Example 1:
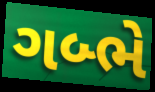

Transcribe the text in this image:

ગબ્ભે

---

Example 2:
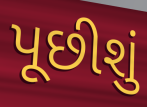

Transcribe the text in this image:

પૂછીશું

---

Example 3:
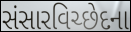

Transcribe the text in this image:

સંસારવિચ્છેદના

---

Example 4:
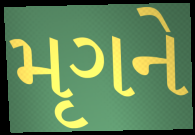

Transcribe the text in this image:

મૃગને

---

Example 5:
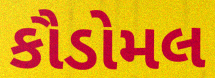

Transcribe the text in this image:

કૌડોમલ